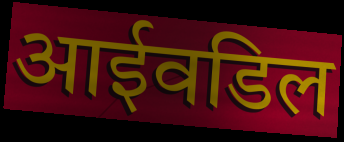
आईवडिल